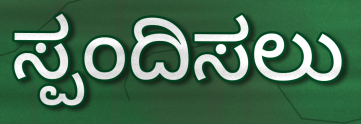
ಸ್ಪಂದಿಸಲು